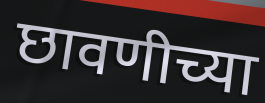
छावणीच्या